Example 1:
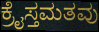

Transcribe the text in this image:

ಕ್ರೈಸ್ತಮತವು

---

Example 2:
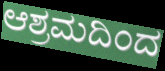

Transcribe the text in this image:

ಆಶ್ರಮದಿಂದ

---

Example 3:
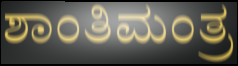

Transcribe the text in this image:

ಶಾಂತಿಮಂತ್ರ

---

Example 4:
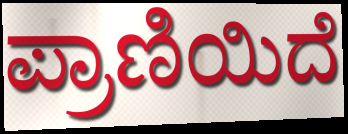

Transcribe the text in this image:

ಪ್ರಾಣಿಯಿದೆ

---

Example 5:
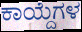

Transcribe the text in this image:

ಕಾಯ್ದೆಗಳ